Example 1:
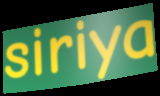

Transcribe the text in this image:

siriya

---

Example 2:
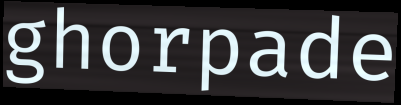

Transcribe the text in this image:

ghorpade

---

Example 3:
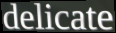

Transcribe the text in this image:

delicate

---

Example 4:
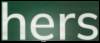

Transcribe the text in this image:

hers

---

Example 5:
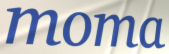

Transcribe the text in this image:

moma